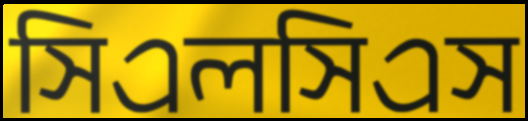
সিএলসিএস